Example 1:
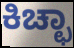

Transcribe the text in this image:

ಕಿಚ್ಛಾ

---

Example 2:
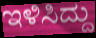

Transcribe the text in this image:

ಇಳಿಸಿದ್ದು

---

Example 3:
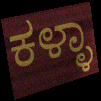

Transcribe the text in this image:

ಕಳ್ಳಾ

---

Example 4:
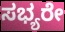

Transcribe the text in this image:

ಸಭ್ಯರೇ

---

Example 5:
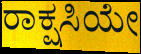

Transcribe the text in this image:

ರಾಕ್ಷಸಿಯೇ